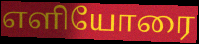
எளியோரை